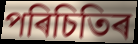
পৰিচিতিৰ